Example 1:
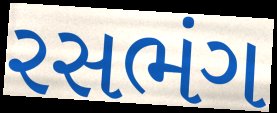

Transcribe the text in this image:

રસભંગ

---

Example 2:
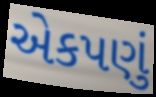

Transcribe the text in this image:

એકપણું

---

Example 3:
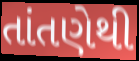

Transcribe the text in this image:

તાંતણેથી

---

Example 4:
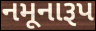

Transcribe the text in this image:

નમૂનારૂપ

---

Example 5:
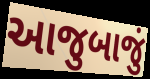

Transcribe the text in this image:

આજુબાજું